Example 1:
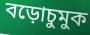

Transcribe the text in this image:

বড়োচুমুক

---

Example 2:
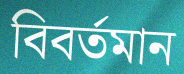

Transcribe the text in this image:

বিবর্তমান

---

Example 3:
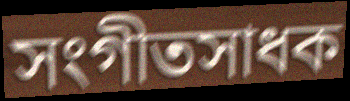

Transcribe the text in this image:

সংগীতসাধক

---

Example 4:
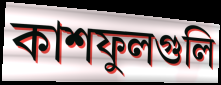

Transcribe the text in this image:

কাশফুলগুলি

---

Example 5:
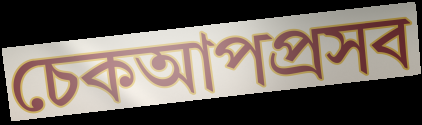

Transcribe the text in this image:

চেকআপপ্রসব